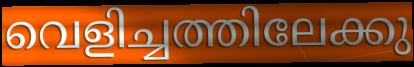
വെളിച്ചത്തിലേക്കു